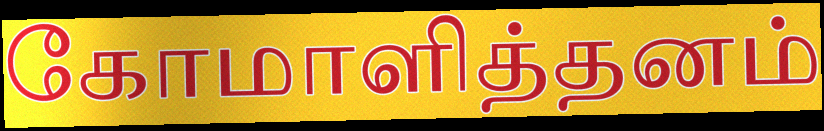
கோமாளித்தனம்